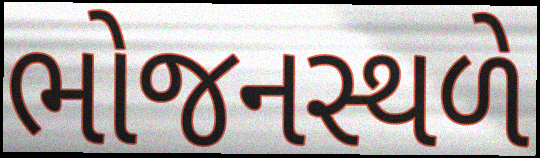
ભોજનસ્થળે